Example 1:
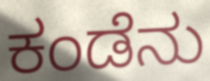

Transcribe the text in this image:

ಕಂಡೆನು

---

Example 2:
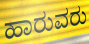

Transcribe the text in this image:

ಹಾರುವರು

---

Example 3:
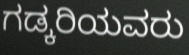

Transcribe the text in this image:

ಗಡ್ಕರಿಯವರು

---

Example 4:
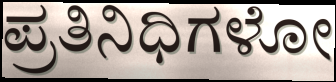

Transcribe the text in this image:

ಪ್ರತಿನಿಧಿಗಳೋ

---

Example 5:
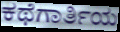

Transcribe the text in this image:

ಕಥೆಗಾರ್ತಿಯ